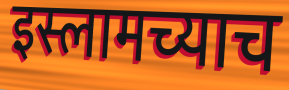
इस्लामच्याच